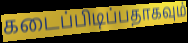
கடைப்பிடிப்பதாகவும்